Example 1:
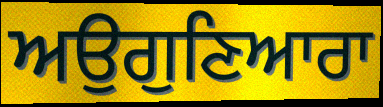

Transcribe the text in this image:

ਅਉਗੁਣਿਆਰਾ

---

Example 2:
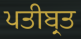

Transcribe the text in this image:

ਪਤੀਬ੍ਰਤ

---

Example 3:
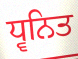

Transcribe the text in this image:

ਧ੍ਵਨਿਤ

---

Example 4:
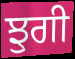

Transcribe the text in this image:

ਝੁਗੀ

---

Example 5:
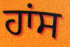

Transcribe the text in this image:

ਹਾਂਸ